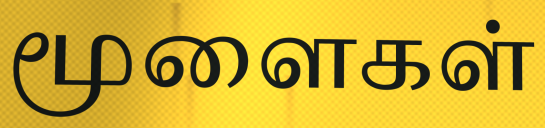
மூளைகள்